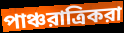
পাঞ্চরাত্রিকরা